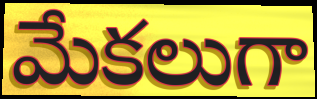
మేకలుగా